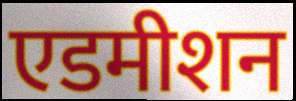
एडमीशन